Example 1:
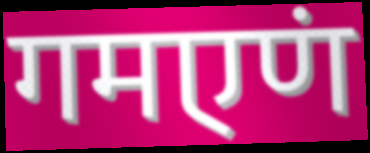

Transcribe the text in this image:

गमएणं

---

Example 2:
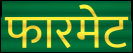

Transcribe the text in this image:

फारमेट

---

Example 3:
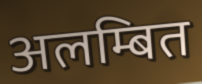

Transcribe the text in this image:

अलम्बित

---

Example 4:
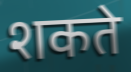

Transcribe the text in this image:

शकते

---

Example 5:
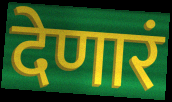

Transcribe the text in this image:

देणारं